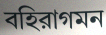
বহিরাগমন